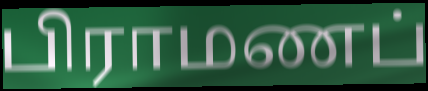
பிராமணப்